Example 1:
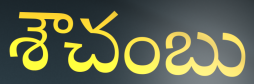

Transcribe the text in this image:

శౌచంబు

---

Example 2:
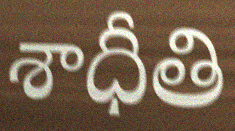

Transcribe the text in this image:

శాధీతి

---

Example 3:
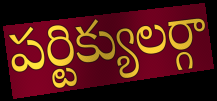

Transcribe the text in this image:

పర్టిక్యులర్గా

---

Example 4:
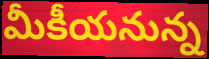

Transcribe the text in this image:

మీకీయనున్న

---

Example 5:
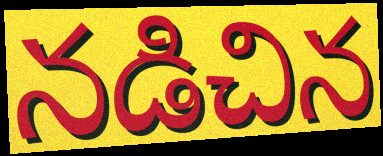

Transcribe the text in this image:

నడిచిన